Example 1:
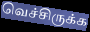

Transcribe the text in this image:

வெச்சிருக்க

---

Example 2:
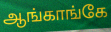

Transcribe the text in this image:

ஆங்காங்கே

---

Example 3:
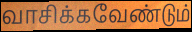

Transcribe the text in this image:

வாசிக்கவேண்டும்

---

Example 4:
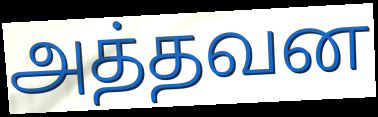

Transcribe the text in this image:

அத்தவன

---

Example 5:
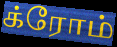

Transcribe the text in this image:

க்ரோம்